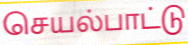
செயல்பாட்டு